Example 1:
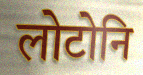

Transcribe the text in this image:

लोटोनि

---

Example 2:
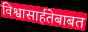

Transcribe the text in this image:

विश्वासार्हतेबाबत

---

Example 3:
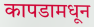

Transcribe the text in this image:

कापडामधून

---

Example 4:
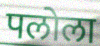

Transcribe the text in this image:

पलोला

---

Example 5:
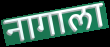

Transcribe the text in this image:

नागाला